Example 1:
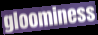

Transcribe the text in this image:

gloominess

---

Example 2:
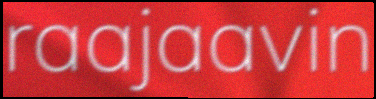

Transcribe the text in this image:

raajaavin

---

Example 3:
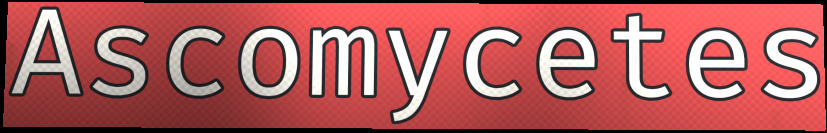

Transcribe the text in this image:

Ascomycetes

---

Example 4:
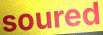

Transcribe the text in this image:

soured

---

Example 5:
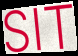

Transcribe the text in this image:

SIT